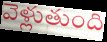
వెళ్లుతుంది